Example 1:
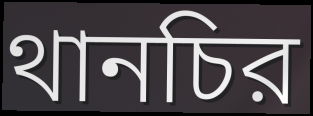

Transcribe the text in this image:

থানচির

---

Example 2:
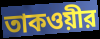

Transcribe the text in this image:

তাকওয়ীর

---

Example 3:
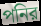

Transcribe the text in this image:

পনির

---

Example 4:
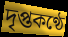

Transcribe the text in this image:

দৃপ্তকণ্ঠে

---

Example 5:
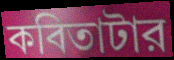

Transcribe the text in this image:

কবিতাটার